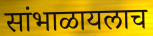
सांभाळायलाच